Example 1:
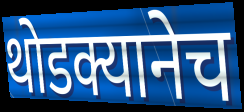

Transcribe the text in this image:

थोडक्यानेच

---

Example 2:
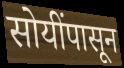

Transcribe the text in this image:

सोयींपासून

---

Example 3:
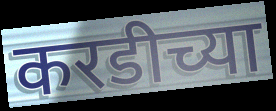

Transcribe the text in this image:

करडीच्या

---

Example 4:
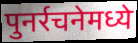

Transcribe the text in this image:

पुनर्रचनेमध्ये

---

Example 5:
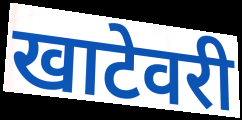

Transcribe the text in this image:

खाटेवरी